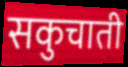
सकुचाती